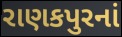
રાણકપુરનાં